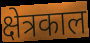
क्षेत्रकाल